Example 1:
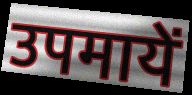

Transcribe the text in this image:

उपमायें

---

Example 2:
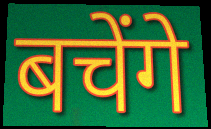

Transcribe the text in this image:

बचेंगे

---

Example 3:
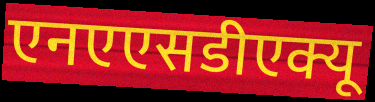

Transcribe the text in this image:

एनएएसडीएक्यू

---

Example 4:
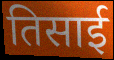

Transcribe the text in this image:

तिसाई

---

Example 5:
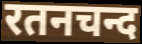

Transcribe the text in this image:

रतनचन्द